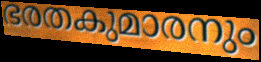
ഭരതകുമാരനും